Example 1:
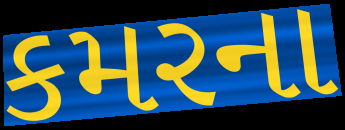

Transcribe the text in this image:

કમરના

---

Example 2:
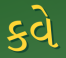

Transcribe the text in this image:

કવે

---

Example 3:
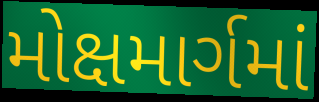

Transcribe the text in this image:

મોક્ષમાર્ગમાં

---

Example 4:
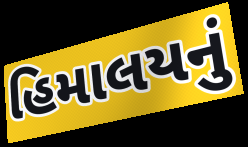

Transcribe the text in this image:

હિમાલયનું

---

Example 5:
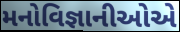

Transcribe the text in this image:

મનોવિજ્ઞાનીઓએ